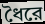
ধৈরে